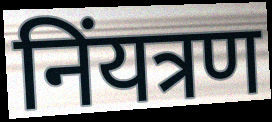
निंयत्रण